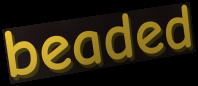
beaded